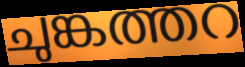
ചുങ്കത്തറ